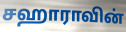
சஹாராவின்